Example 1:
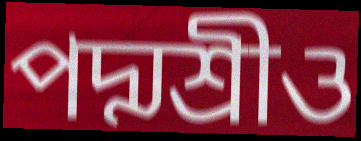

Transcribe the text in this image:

পদ্মশ্রীও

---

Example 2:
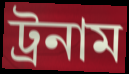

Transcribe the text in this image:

ট্রনাম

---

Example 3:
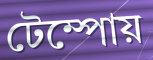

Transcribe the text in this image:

টেম্পোয়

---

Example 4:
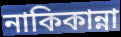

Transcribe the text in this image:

নাকিকান্না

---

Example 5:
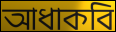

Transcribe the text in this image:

আধাকবি